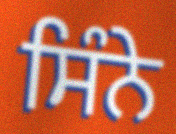
ਸਿੰਨੇ